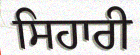
ਸਿਹਾਰੀ